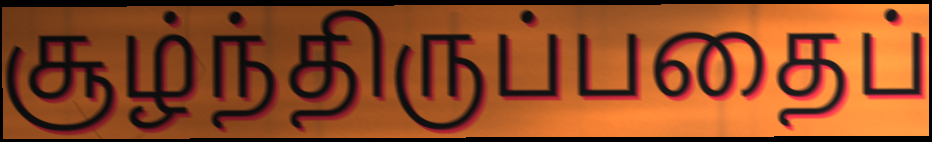
சூழ்ந்திருப்பதைப்